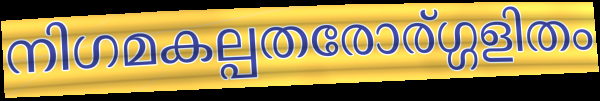
നിഗമകല്പതരോര്ഗ്ഗളിതം